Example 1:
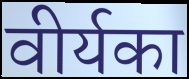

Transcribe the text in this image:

वीर्यका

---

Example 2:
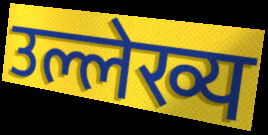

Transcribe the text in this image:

उल्लेख्य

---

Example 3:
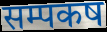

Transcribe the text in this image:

सम्पकष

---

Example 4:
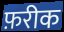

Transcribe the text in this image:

फ़रीक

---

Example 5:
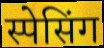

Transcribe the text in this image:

स्पेसिंग